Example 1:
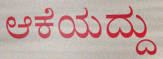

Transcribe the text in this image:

ಆಕೆಯದ್ದು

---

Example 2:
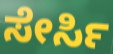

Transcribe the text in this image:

ಸೇರ್ಸಿ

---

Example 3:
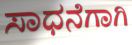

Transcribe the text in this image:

ಸಾಧನೆಗಾಗಿ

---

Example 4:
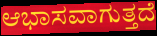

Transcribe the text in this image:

ಆಭಾಸವಾಗುತ್ತದೆ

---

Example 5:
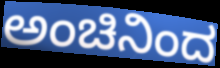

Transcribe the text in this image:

ಅಂಚಿನಿಂದ